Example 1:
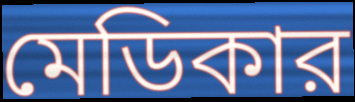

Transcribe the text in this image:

মেডিকার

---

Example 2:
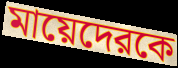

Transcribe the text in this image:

মায়েদেরকে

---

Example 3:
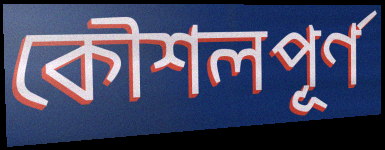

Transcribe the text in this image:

কৌশলপূর্ণ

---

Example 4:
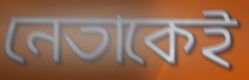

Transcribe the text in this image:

নেতাকেই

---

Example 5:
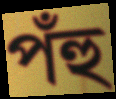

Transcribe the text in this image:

পঁহু